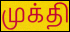
முக்தி